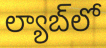
ల్యాబ్‌లో